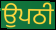
ਉਪਠੀ